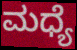
ಮಧ್ಯೆ